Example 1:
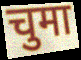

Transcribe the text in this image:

चुमा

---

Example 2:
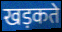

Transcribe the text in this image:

खड़कते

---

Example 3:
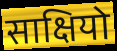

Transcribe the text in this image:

साक्षियो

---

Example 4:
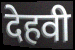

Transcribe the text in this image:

देहवी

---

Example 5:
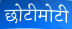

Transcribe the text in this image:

छोटीमोटी